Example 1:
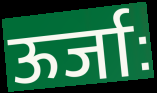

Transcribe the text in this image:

ऊर्जाः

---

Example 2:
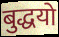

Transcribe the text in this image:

बुद्धयो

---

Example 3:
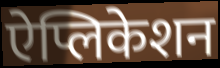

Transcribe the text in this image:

ऐप्लिकेशन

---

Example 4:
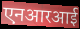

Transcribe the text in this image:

एनआरआई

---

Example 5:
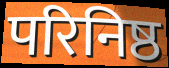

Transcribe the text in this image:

परिनिष्ठ